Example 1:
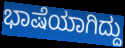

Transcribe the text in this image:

ಭಾಷೆಯಾಗಿದ್ದು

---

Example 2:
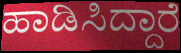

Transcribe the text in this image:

ಹಾಡಿಸಿದ್ದಾರೆ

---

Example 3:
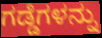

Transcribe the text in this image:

ಗಡ್ಡೆಗಳನ್ನು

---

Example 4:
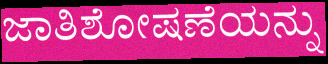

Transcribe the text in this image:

ಜಾತಿಶೋಷಣೆಯನ್ನು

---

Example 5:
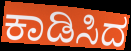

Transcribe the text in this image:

ಕಾಡಿಸಿದ